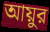
আয়ুর